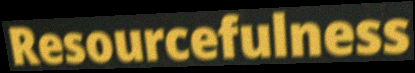
Resourcefulness